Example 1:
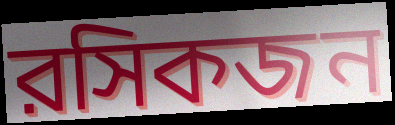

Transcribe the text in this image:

রসিকজন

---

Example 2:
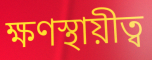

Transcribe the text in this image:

ক্ষণস্থায়ীত্ব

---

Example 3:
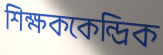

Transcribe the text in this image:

শিক্ষককেন্দ্রিক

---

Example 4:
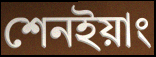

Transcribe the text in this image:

শেনইয়াং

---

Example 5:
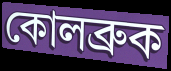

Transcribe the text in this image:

কোলব্রুক